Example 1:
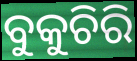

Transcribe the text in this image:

ବୁକୁଚିରି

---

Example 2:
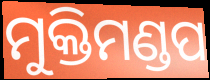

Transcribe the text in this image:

ମୁକ୍ତିମଣ୍ଡପ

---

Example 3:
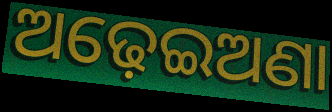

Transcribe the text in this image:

ଅଢ଼େଇଅଣା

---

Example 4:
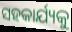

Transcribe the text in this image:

ସହକାର୍ଯ୍ୟକୁ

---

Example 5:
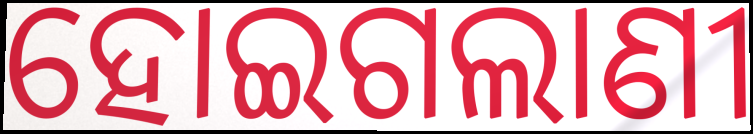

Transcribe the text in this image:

ହୋଇଗଲାଣୀ